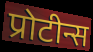
प्रोटीन्स